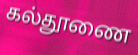
கல்தூணை